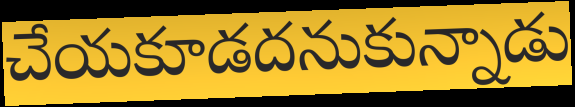
చేయకూడదనుకున్నాడు